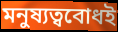
মনুষ্যত্ববোধই